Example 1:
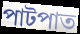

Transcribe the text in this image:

পাটপাত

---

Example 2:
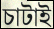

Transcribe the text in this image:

চাটাই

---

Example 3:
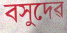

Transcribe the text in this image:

বসুদেৱ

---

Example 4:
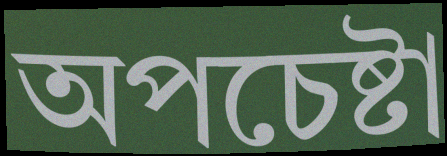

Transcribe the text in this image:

অপচেষ্টা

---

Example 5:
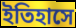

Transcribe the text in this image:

ইতিহাসে